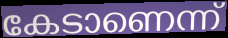
കേടാണെന്ന്